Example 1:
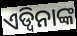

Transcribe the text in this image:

ଏଡ୍ୱିନାଙ୍କ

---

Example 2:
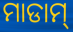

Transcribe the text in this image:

ମାଡାମ୍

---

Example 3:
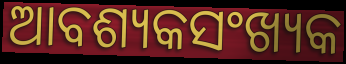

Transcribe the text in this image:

ଆବଶ୍ୟକସଂଖ୍ୟକ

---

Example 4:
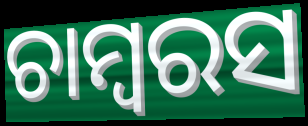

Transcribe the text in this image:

ଚାମ୍ବରସ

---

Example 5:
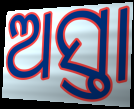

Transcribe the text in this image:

ଅସ୍ତା